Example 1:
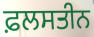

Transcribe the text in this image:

ਫ਼ਲਸਤੀਨ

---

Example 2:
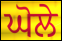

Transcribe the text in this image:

ਘੋਲੇ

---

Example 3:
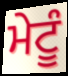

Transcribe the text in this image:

ਮੇਟੂੰ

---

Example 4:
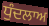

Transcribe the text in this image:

ਧੁੰਦਲਾਅ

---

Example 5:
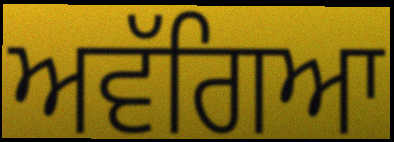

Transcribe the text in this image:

ਅਵੱਗਿਆ